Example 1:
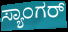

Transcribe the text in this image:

ಸ್ಯಾಂಗರ್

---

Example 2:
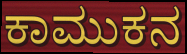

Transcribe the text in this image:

ಕಾಮುಕನ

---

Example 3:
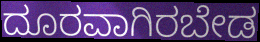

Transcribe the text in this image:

ದೂರವಾಗಿರಬೇಡ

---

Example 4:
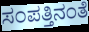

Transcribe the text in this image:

ಸಂಪತ್ತಿನಂತೆ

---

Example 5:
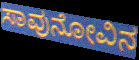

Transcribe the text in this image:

ಸಾವುನೋವಿನ